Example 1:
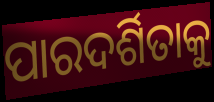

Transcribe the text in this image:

ପାରଦର୍ଶିତାକୁ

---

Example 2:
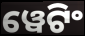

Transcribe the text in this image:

ୱେଟିଂ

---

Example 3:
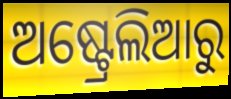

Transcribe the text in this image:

ଅଷ୍ଟ୍ରେଲିଆରୁ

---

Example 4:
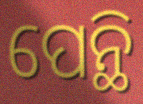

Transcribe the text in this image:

ପେନ୍ଥି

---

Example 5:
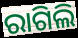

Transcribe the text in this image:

ରାଗିଲି